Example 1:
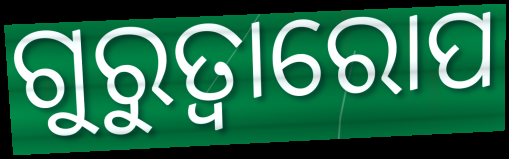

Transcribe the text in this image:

ଗୁରୁତ୍ବାରୋପ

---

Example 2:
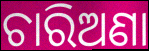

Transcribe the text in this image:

ଚାରିଅଣା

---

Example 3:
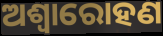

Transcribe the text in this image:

ଅଶ୍ୱାରୋହଣ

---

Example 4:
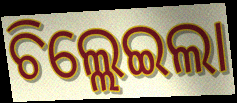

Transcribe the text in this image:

ଚିଲ୍ଲେଇଲା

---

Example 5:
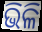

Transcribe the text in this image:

ଭିଳି